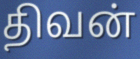
திவன்